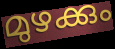
മുഴക്കും